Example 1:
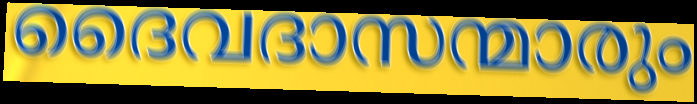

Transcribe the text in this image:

ദൈവദാസന്മാരും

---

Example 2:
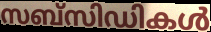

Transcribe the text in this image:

സബ്സിഡികൾ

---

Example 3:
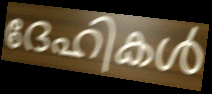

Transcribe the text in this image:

ദേഹികൾ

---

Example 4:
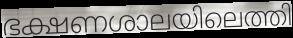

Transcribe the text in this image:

ഭക്ഷണശാലയിലെത്തി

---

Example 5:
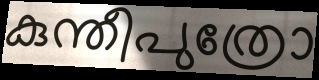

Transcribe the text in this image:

കുന്തീപുത്രോ